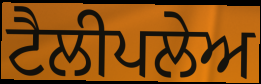
ਟੈਲੀਪਲੇਅ